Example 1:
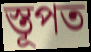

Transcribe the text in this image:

স্তূপত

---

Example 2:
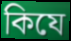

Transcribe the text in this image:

কিযে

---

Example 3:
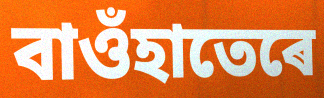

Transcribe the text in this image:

বাওঁহাতেৰে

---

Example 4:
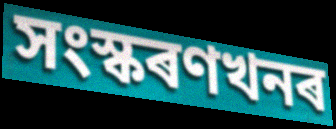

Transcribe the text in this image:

সংস্কৰণখনৰ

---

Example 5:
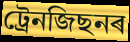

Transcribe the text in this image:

ট্ৰেনজিছনৰ